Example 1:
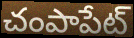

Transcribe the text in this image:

చంపాపేట్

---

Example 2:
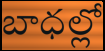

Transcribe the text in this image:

బాధల్లో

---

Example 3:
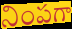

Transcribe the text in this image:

నింపగా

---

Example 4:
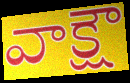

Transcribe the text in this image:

వాక్షౌ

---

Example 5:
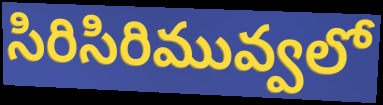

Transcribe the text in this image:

సిరిసిరిమువ్వలో